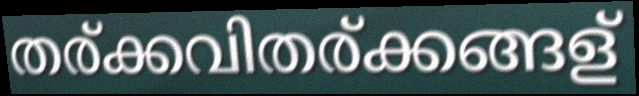
തര്ക്കവിതര്ക്കങ്ങള്